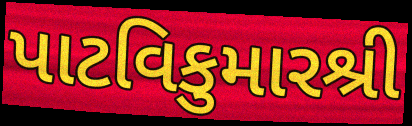
પાટવિકુમારશ્રી